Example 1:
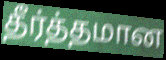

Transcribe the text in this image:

தீர்த்தமான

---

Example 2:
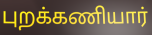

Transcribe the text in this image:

புறக்கணியார்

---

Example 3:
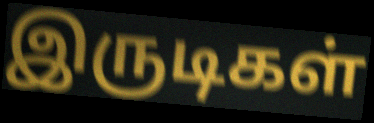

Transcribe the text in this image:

இருடிகள்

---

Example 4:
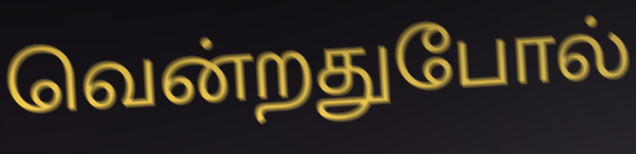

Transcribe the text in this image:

வென்றதுபோல்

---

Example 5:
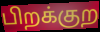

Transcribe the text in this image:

பிறக்குற